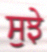
ਸੁਝੇ